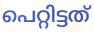
പെറ്റിട്ടത്